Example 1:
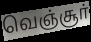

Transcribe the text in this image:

வெஞ்சூர்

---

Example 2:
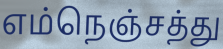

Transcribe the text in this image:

எம்நெஞ்சத்து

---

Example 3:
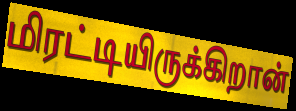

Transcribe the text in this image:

மிரட்டியிருக்கிறான்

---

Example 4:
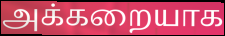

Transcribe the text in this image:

அக்கறையாக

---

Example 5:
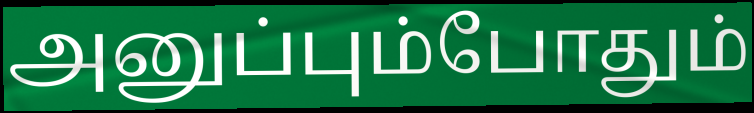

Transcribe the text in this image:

அனுப்பும்போதும்